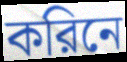
করিনে